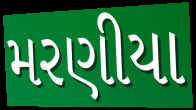
મરણીયા